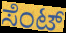
ಸೆಂಟ್